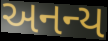
અનન્ય